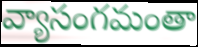
వ్యాసంగమంతా